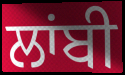
ਲਾਂਬੀ